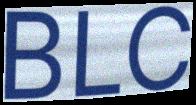
BLC